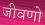
जीवणो